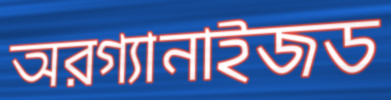
অরগ্যানাইজড